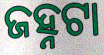
ଜହ୍ନଟା